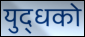
युद्धको